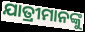
ଯାତ୍ରୀମାନଙ୍କୁ